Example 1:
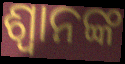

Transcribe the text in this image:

ଶ୍ବାନଙ୍କ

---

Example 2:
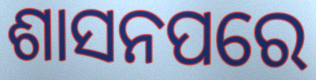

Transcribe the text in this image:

ଶାସନପରେ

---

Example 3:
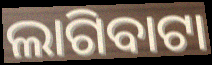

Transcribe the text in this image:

ଲାଗିବାଟା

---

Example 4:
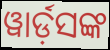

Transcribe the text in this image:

ୱାର୍ଡ଼ସଙ୍କ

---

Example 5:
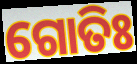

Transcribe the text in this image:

ଗୋତିଃ